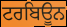
ਟਰਬਿਊਨ